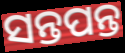
ସନ୍ତପନ୍ତ